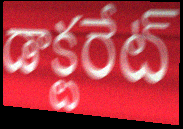
డాక్టరేట్